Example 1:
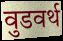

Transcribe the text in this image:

वुडवर्थ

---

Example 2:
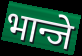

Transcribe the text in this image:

भान्जे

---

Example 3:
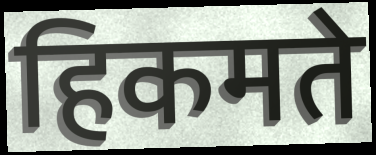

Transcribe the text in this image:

हिकमते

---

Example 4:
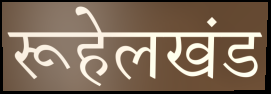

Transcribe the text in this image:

रूहेलखंड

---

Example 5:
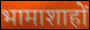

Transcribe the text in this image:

भामाशाहों